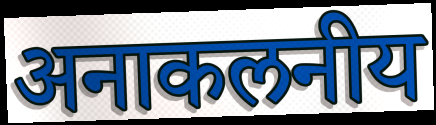
अनाकलनीय